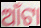
ଆଁଟା